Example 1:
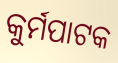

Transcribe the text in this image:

କୁର୍ମପାଟକ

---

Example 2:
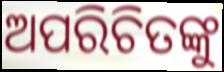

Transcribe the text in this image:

ଅପରିଚିତଙ୍କୁ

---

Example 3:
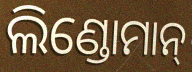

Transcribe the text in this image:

ଲିଣ୍ଡୋମାନ୍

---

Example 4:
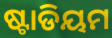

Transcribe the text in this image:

ଷ୍ଟାଡିୟମ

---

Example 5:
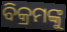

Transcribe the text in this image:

ବିକ୍ରମଙ୍କୁ